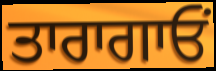
ਤਾਰਾਗਾਓਂ